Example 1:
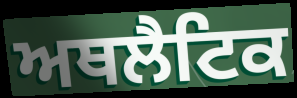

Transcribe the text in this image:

ਅਥਲੈਟਿਕ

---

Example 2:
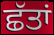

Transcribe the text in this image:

ਛੱਤਾਂ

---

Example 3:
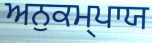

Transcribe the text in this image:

ਅਨੁਕਮ੍ਪਾਯ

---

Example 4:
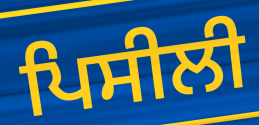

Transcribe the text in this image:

ਪਿਸੀਲੀ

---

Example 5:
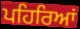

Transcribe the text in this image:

ਪਹਿਰਿਆਂ